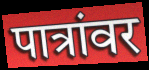
पात्रांवर